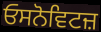
ਓਸਨੋਵਿਟਜ਼